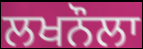
ਲਖਨੌਲਾ